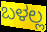
ಬಳಲ್ಲ